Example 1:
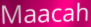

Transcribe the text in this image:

Maacah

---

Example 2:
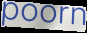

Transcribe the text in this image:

poorn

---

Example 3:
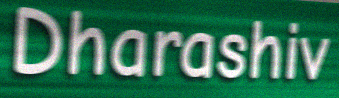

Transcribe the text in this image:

Dharashiv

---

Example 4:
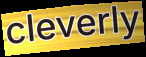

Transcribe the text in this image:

cleverly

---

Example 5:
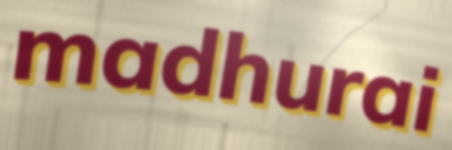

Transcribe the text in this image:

madhurai